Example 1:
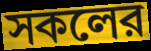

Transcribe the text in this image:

সকলের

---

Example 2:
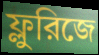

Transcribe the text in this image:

ফ্লুরিজে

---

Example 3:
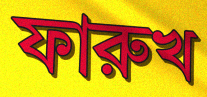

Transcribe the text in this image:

ফারুখ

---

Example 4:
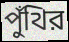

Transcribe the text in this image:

পুঁথির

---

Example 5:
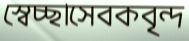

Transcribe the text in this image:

স্বেচ্ছাসেবকবৃন্দ